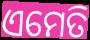
ଏମେତି